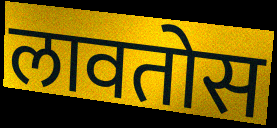
लावतोस